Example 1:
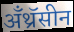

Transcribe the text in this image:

अँथ्रॅसीन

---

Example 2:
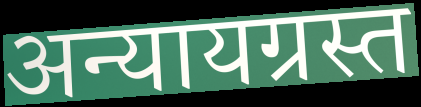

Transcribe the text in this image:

अन्यायग्रस्त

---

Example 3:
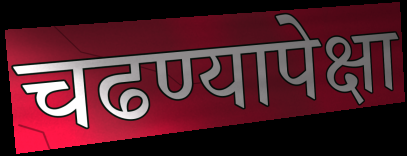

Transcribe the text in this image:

चढण्यापेक्षा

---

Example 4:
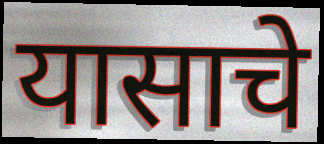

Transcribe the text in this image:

यासाचे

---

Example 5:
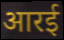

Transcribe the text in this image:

आरई